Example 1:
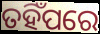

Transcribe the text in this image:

ତହିଁପରେ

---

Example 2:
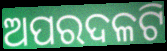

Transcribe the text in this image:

ଅପରଦଳଟି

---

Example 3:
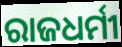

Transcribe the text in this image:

ରାଜଧର୍ମୀ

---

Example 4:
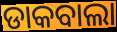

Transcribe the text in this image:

ଡାକବାଲା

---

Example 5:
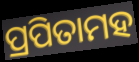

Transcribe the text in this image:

ପ୍ରପିତାମହ